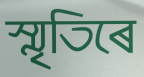
স্মৃতিৰে